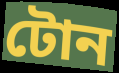
টোন